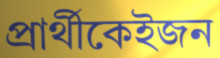
প্ৰাৰ্থীকেইজন